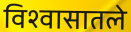
विश्वासातले